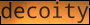
decoity